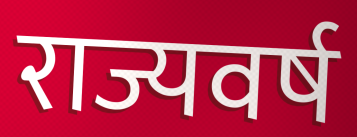
राज्यवर्ष